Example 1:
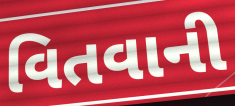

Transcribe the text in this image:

વિતવાની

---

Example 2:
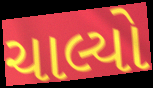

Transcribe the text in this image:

ચાલ્યો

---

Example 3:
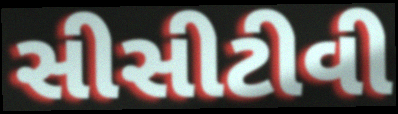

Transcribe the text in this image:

સીસીટીવી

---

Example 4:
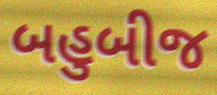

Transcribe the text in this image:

બહુબીજ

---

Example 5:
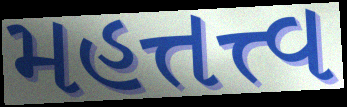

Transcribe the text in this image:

મહત્તત્ત્વ